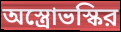
অস্ত্রোভস্কির